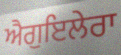
ਐਗੁਇਲੇਰਾ